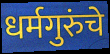
धर्मगुरुंचे